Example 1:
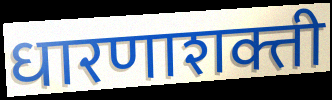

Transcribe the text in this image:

धारणाशक्ती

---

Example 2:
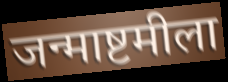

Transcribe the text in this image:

जन्माष्टमीला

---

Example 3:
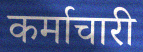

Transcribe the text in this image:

कर्माचारी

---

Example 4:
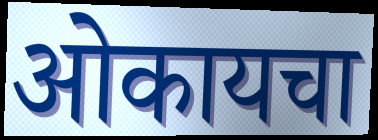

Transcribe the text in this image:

ओकायचा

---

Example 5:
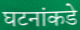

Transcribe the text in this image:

घटनांकडे